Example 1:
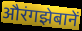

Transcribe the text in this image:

औरंगझेबानें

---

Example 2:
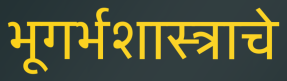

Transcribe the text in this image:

भूगर्भशास्त्राचे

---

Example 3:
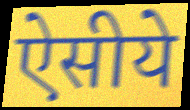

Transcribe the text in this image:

ऐसीये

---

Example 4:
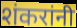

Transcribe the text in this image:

शंकरांनी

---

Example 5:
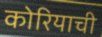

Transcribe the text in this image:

कोरियाची